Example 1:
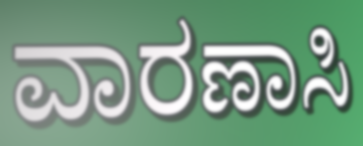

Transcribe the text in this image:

ವಾರಣಾಸಿ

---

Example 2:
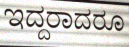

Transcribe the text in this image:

ಇದ್ದರಾದರೂ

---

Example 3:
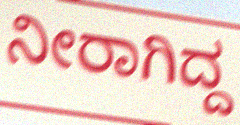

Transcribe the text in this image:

ನೀರಾಗಿದ್ದ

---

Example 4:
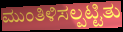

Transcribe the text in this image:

ಮುಂತಿಳಿಸಲ್ಪಟ್ಟಿತು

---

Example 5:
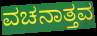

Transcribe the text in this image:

ವಚನಾತ್ತವ